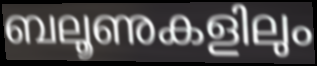
ബലൂണുകളിലും